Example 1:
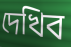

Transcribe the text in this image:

দেখিব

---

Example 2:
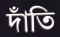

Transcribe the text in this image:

দাঁতি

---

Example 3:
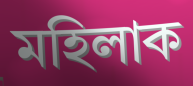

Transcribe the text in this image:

মহিলাক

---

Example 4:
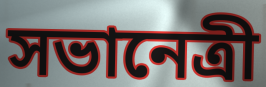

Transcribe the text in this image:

সভানেত্ৰী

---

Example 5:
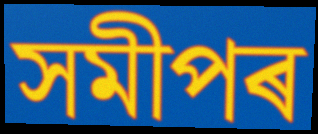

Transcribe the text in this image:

সমীপৰ